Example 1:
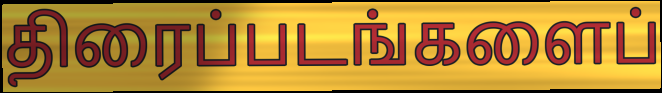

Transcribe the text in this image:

திரைப்படங்களைப்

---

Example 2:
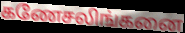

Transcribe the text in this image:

கணேசலிங்கனை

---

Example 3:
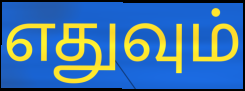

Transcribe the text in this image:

எதுவும்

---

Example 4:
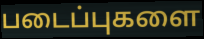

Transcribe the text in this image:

படைப்புகளை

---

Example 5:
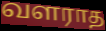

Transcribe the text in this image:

வளராத